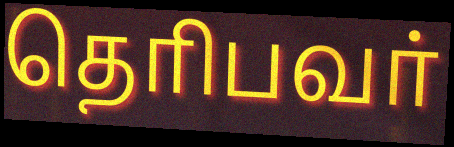
தெரிபவர்